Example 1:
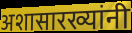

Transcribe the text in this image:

अशासारख्यांनी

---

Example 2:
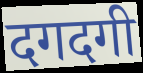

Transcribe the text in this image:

दगदगी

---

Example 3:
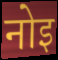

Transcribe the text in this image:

नोइ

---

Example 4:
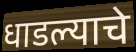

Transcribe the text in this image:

धाडल्याचे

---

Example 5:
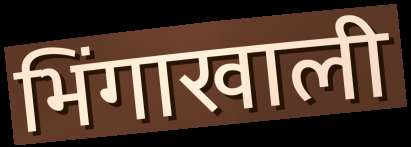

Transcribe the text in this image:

भिंगाखाली